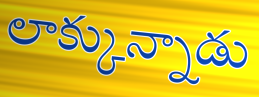
లాక్కున్నాడు